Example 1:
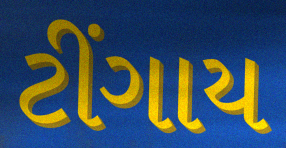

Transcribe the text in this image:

ટીંગાય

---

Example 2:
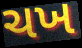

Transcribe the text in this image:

ચખ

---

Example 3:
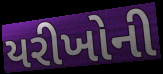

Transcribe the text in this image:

યરીખોની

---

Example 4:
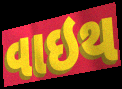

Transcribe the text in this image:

વાઇથ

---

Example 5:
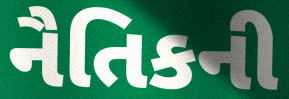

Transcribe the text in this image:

નૈતિકની